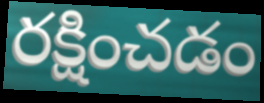
రక్షించడం